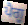
ਪੈਗੂ